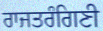
ਰਾਜਤਰੰਗਿਣੀ